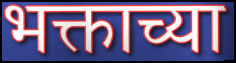
भक्ताच्या